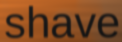
shave